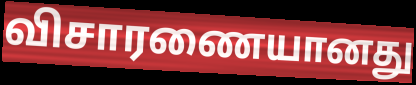
விசாரணையானது